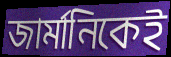
জার্মানিকেই